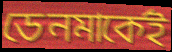
ডেনমার্কেই